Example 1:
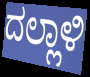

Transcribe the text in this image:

ದಲ್ಲಾಳಿ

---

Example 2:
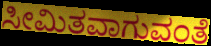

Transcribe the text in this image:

ಸೀಮಿತವಾಗುವಂತೆ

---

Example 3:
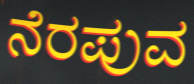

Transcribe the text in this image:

ನೆರಪುವ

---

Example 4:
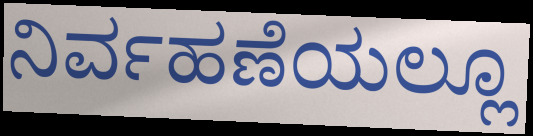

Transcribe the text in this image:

ನಿರ್ವಹಣೆಯಲ್ಲೂ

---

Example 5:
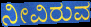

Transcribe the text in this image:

ನೀವಿರುವ